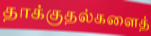
தாக்குதல்களைத்